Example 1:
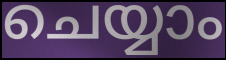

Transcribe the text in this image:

ചെയ്യാം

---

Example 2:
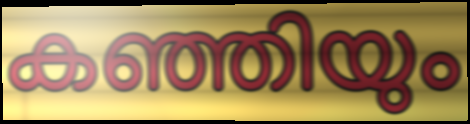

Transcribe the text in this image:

കഞ്ഞിയും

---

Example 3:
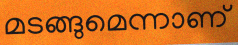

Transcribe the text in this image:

മടങ്ങുമെന്നാണ്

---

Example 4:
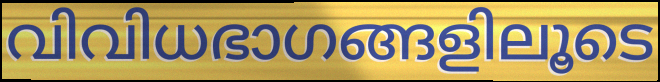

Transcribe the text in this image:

വിവിധഭാഗങ്ങളിലൂടെ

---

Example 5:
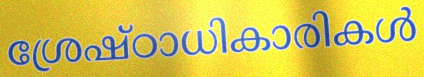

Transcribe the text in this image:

ശ്രേഷ്ഠാധികാരികൾ